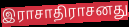
இராசாதிராசனது